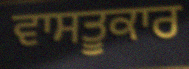
ਵਾਸਤੂਕਾਰ